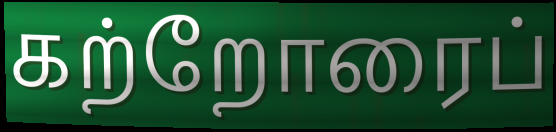
கற்றோரைப்